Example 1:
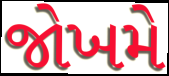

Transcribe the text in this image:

જોખમે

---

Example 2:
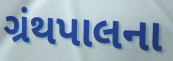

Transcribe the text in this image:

ગ્રંથપાલના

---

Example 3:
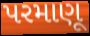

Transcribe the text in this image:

પરમાણૂ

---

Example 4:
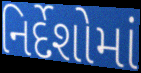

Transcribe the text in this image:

નિર્દેશોમાં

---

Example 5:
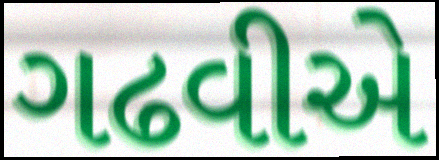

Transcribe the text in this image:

ગઢવીએ